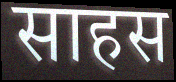
साहस